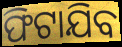
ଫିଟାଯିବ